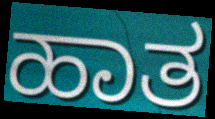
ಹಾತ